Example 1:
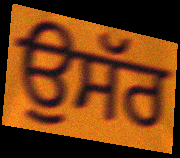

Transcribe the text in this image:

ਉਸੱਰ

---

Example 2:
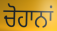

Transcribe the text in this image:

ਚੋਹਾਨਾਂ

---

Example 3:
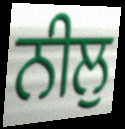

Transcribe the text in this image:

ਨੀਲੁ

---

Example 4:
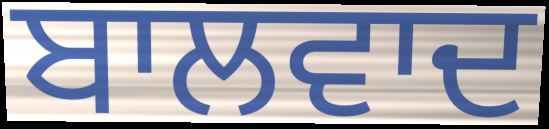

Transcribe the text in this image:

ਬਾਲਵਾਦ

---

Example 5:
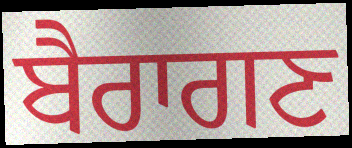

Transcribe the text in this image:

ਬੈਰਾਗਣ